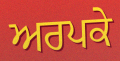
ਅਰਪਕੇ